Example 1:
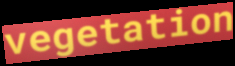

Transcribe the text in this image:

vegetation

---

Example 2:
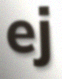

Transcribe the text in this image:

ej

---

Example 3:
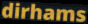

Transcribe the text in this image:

dirhams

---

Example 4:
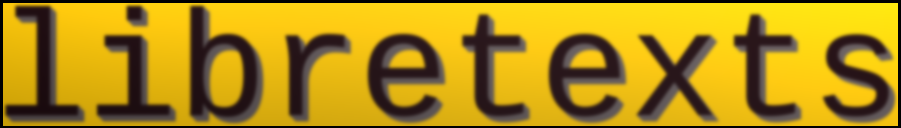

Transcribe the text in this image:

libretexts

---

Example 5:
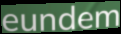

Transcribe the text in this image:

eundem